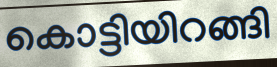
കൊട്ടിയിറങ്ങി